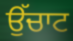
ਉੱਚਾਟ